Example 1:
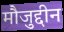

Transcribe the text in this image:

मौजुद्दीन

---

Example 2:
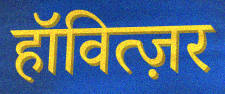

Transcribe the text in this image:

हॉवित्ज़र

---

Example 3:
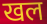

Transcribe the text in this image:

खल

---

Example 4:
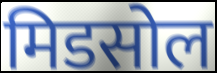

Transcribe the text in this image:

मिडसोल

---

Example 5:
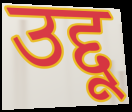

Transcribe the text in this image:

उद्दू